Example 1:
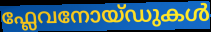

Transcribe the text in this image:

ഫ്ലേവനോയ്ഡുകൾ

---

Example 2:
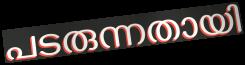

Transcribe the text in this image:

പടരുന്നതായി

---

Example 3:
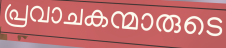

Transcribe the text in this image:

പ്രവാചകന്മാരുടെ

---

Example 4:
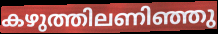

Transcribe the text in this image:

കഴുത്തിലണിഞ്ഞു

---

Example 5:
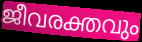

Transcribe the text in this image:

ജീവരക്തവും